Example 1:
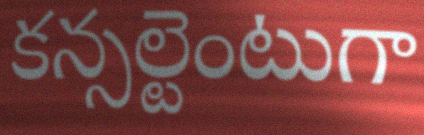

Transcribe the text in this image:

కన్సల్టెంటుగా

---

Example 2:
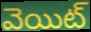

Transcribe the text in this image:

వెయిట్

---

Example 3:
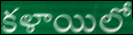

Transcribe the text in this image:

కళాయిలో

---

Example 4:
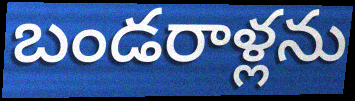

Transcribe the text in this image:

బండరాళ్లను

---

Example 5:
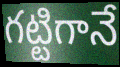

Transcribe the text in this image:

గట్టిగానే